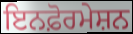
ਇਨਫ਼ੋਰਮੇਸ਼ਨ